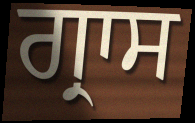
ਗ੍ਰਾਸ